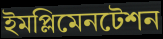
ইমপ্লিমেনটেশন